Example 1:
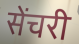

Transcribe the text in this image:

सेंचरी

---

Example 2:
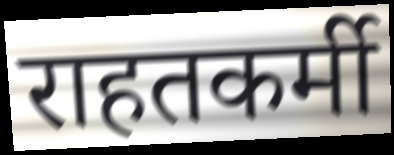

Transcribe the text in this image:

राहतकर्मी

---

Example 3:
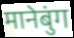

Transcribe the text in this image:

मानेबुंग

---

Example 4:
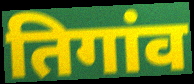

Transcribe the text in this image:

तिगांव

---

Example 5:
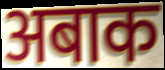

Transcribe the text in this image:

अबाक